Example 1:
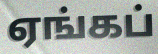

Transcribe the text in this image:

ஏங்கப்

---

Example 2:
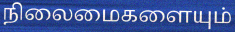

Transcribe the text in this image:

நிலைமைகளையும்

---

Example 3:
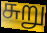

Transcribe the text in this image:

சுறு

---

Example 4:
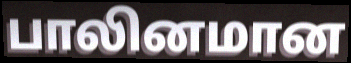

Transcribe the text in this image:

பாலினமான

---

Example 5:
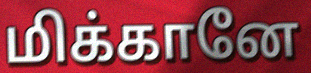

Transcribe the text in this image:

மிக்கானே